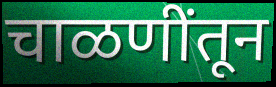
चाळणींतून